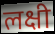
लक्षी